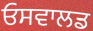
ਓਸਵਾਲਡ